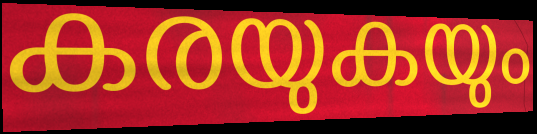
കരയുകയും